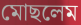
মোছলেম